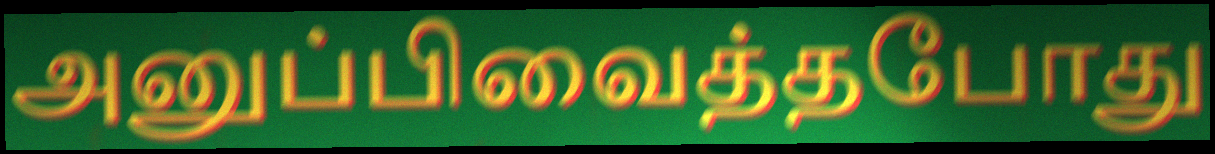
அனுப்பிவைத்தபோது